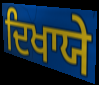
ਦਿਖਾਯੇ